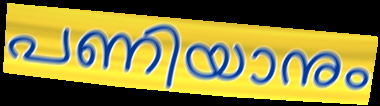
പണിയാനും